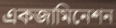
একজামিনেশন